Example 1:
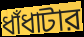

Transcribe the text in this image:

ধাঁধাটার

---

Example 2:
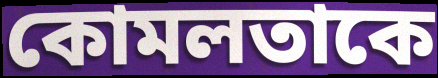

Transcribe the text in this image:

কোমলতাকে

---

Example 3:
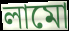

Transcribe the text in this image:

লামো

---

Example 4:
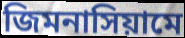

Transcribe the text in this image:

জিমনাসিয়ামে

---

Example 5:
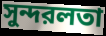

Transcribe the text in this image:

সুন্দরলতা